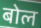
बोल